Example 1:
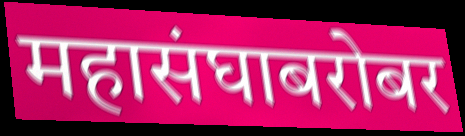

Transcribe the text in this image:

महासंघाबरोबर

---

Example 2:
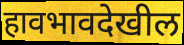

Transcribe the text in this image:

हावभावदेखील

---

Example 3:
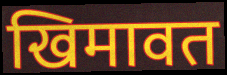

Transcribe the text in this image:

खिमावत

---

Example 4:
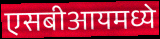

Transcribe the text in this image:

एसबीआयमध्ये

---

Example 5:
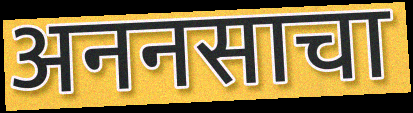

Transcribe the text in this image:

अननसाचा